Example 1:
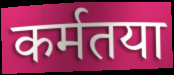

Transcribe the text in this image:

कर्मतया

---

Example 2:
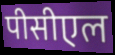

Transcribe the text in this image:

पीसीएल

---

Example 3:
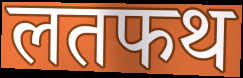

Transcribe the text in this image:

लतफथ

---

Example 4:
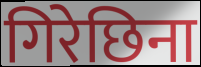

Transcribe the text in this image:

गिरेछिना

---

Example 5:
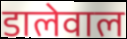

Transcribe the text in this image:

डालेवाल